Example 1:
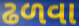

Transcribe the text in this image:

ઢળવા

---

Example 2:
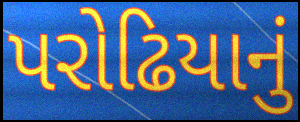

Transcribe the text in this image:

પરોઢિયાનું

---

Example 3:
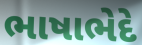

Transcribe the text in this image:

ભાષાભેદે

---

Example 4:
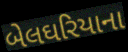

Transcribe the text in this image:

બેલઘરિયાના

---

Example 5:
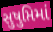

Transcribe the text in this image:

સુષુપ્તિમાં